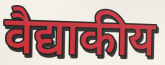
वैद्याकीय